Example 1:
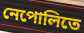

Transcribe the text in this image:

নেপোলিতে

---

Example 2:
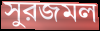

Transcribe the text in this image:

সুরজমল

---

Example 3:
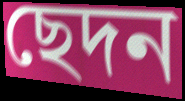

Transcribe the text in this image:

ছেদন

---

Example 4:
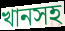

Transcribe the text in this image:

খানসহ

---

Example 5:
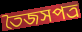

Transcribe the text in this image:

তৈজসপত্র